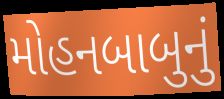
મોહનબાબુનું